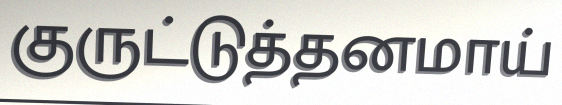
குருட்டுத்தனமாய்